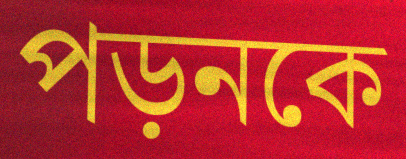
পড়নকে